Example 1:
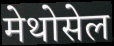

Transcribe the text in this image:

मेथोसेल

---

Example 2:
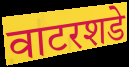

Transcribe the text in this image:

वाटरशडे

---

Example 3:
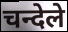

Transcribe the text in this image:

चन्देले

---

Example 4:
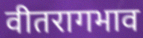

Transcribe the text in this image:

वीतरागभाव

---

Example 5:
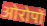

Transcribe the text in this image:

ओरोपों